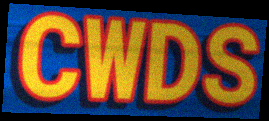
CWDS